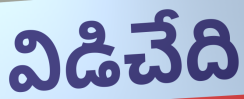
విడిచేది